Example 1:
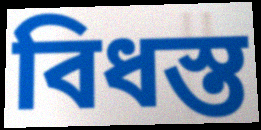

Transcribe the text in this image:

বিধস্ত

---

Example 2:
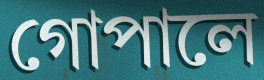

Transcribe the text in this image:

গোপালে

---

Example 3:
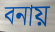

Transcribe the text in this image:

বনায়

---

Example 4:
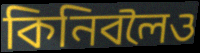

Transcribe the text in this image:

কিনিবলৈও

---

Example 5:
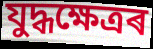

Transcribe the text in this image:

যুদ্ধক্ষেত্ৰৰ